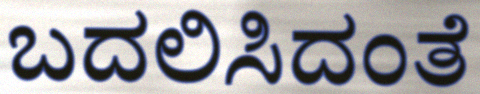
ಬದಲಿಸಿದಂತೆ